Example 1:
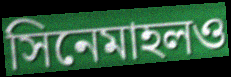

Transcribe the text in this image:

সিনেমাহলও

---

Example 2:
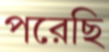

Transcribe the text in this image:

পরেছি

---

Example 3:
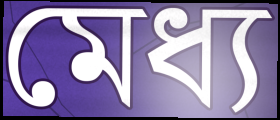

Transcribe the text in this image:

মেধ্য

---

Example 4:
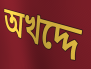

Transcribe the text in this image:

অখদ্দে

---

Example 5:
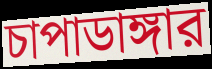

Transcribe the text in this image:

চাপাডাঙ্গার